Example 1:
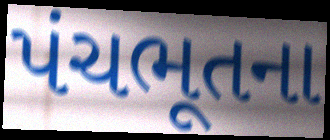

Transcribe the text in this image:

પંચભૂતના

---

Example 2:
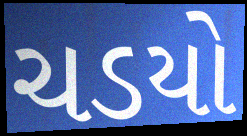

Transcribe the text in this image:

ચડયો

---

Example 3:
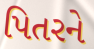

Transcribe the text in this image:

પિતરને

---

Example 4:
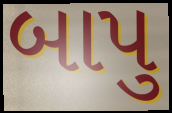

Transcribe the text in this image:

બાપુ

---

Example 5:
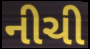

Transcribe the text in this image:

નીચી